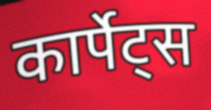
कार्पेट्स